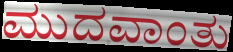
ಮುದವಾಂತು